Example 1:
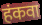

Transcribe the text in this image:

हंकवा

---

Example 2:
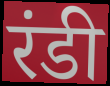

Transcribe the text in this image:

रंडी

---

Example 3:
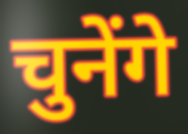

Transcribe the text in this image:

चुनेंगे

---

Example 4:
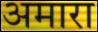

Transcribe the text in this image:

अमारा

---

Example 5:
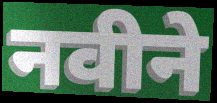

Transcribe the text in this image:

नवीने